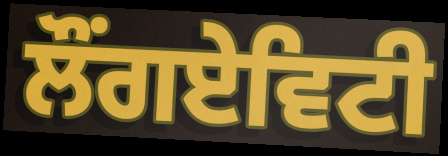
ਲੌਂਗਏਵਿਟੀ